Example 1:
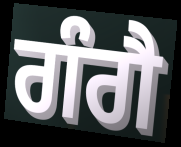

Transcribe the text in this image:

ਗੰਗੈ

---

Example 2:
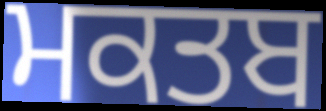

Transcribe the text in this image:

ਮਕਤਬ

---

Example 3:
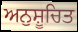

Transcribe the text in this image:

ਅਨੁਸ਼ੂਚਿਤ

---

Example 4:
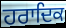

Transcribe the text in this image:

ਹਰਾਦਿਕ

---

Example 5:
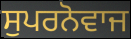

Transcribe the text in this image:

ਸੁਪਰਨੋਵਾਜ